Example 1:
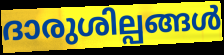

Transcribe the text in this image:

ദാരുശില്പങ്ങൾ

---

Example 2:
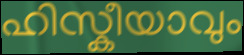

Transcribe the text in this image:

ഹിസ്കീയാവും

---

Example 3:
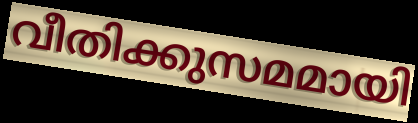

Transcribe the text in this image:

വീതിക്കുസമമായി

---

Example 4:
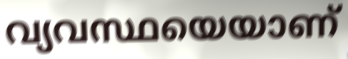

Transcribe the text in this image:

വ്യവസ്ഥയെയാണ്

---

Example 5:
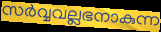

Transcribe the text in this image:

സർവ്വവല്ലഭനാകുന്ന